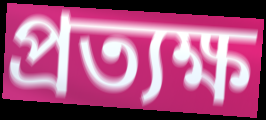
প্ৰত্যক্ষ